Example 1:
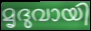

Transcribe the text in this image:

മൃദുവായി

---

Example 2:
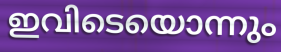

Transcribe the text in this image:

ഇവിടെയൊന്നും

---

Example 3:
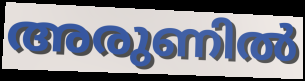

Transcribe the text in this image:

അരുണിൽ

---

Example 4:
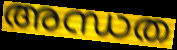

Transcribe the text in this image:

അന്ധത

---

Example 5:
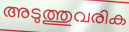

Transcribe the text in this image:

അടുത്തുവരിക